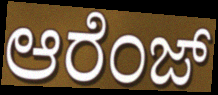
ಆರೆಂಜ್